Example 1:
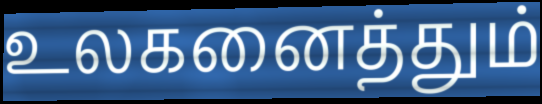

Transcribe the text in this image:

உலகனைத்தும்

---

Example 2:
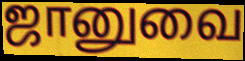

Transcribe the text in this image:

ஜானுவை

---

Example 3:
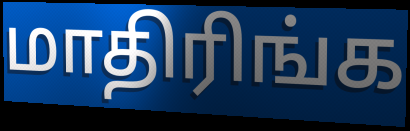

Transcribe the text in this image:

மாதிரிங்க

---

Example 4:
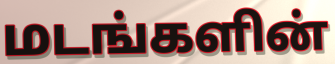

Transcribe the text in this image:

மடங்களின்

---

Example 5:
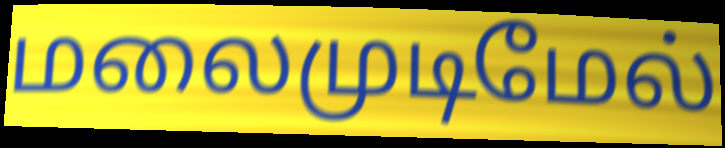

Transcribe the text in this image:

மலைமுடிமேல்